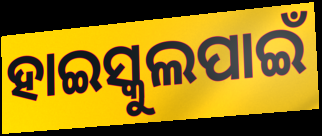
ହାଇସ୍କୁଲପାଇଁ